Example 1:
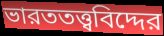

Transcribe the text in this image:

ভারততত্ত্ববিদ্দের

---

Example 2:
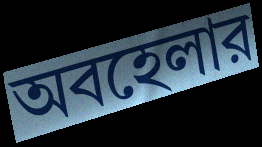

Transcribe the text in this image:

অবহেলার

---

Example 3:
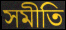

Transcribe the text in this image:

সমীতি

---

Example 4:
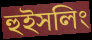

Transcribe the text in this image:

হুইসলিং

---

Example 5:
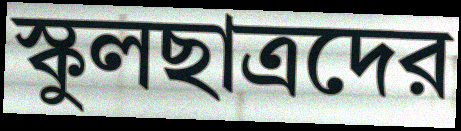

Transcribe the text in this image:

স্কুলছাত্রদের